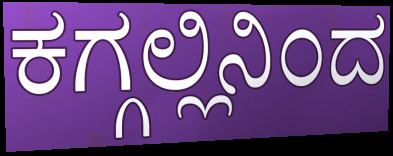
ಕಗ್ಗಲ್ಲಿನಿಂದ